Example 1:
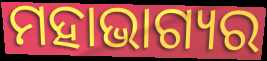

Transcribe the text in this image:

ମହାଭାଗ୍ୟର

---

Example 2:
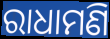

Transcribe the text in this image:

ରାଧାମଣି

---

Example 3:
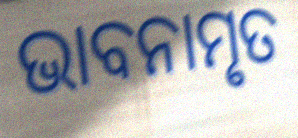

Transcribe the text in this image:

ଭାବନାମୃତ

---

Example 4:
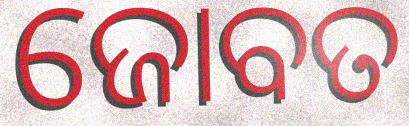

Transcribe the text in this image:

ଜୋବତ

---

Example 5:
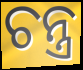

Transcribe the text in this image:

ଚନ୍ତ୍ର